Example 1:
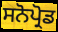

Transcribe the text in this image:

ਸਨੋਪ੍ਰੋਡ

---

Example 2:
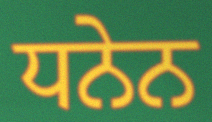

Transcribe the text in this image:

ਧਨੇਨ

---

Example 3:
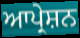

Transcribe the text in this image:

ਆਪ੍ਰੇਸ਼ਨ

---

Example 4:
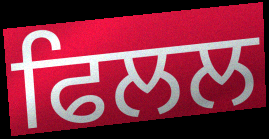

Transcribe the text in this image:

ਫਿਲਲ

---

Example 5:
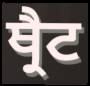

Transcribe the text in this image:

ਥ੍ਰੈਟ